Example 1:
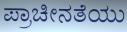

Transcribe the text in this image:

ಪ್ರಾಚೀನತೆಯು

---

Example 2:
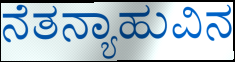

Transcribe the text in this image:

ನೆತನ್ಯಾಹುವಿನ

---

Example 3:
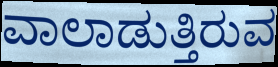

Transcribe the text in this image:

ವಾಲಾಡುತ್ತಿರುವ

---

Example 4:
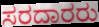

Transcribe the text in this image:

ಸರದಾರರು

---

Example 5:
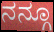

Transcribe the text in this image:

ನನ್ಗೂ